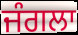
ਜੰਗਲਾ